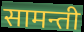
सामन्ती